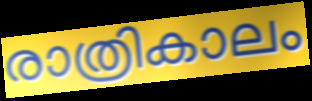
രാത്രികാലം